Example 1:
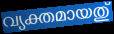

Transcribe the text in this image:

വ്യക്തമായതു്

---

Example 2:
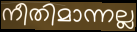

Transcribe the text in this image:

നീതിമാന്നല്ല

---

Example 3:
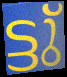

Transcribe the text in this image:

ട്ടു്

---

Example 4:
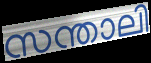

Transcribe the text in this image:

സന്താലി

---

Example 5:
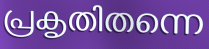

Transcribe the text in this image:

പ്രകൃതിതന്നെ